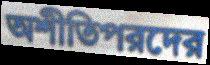
অশীতিপরদের